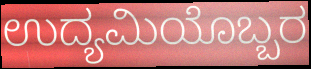
ಉದ್ಯಮಿಯೊಬ್ಬರ